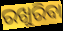
ରଖୁରିବା